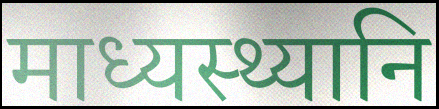
माध्यस्थ्यानि